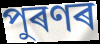
পুৰণৰ